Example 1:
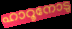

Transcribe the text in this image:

ഹാറൂനോടു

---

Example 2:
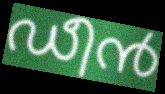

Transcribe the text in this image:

ഡീൻ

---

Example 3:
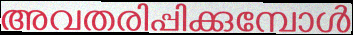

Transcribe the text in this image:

അവതരിപ്പിക്കുമ്പോൾ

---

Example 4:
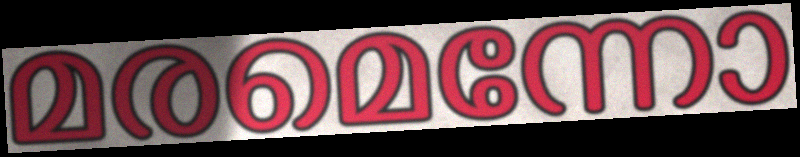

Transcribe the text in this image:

മരമെന്നോ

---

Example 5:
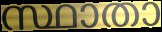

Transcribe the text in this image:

സ്ഥാതാ